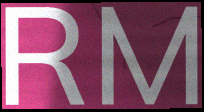
RM